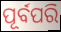
ପୂର୍ବପରି